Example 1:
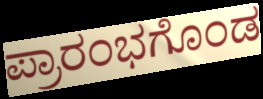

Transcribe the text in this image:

ಪ್ರಾರಂಭಗೊಂಡ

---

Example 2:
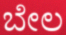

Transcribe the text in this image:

ಬೇಲ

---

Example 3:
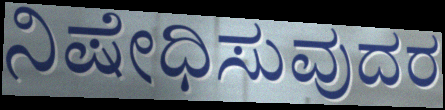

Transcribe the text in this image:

ನಿಷೇಧಿಸುವುದರ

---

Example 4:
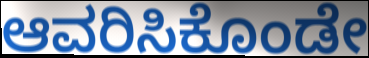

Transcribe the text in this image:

ಆವರಿಸಿಕೊಂಡೇ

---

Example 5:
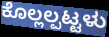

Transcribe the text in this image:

ಕೊಲ್ಲಲ್ಪಟ್ಟಳು